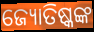
ଜ୍ୟୋତିଷ୍କଙ୍କ